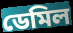
ডেমিল